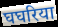
घघरिया